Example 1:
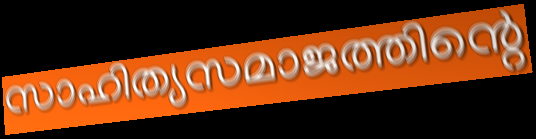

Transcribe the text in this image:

സാഹിത്യസമാജത്തിന്റെ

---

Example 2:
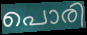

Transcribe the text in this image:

പൊരി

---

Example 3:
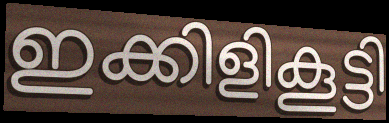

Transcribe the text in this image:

ഇക്കിളികൂട്ടി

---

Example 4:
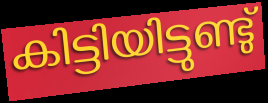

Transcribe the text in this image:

കിട്ടിയിട്ടുണ്ടു്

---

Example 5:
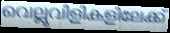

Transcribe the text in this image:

വെല്ലുവിളികളിലേക്ക്